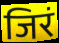
जिरं